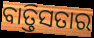
ବାତ୍ତିସତାର